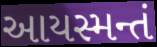
આયસ્મન્તં